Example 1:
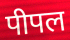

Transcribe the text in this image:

पीपल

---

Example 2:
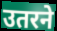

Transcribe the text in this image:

उतरने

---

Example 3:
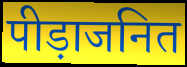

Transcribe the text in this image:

पीड़ाजनित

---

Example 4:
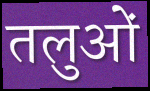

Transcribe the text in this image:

तलुओं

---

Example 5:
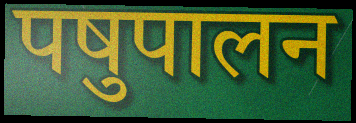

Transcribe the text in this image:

पषुपालन